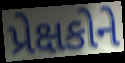
પ્રેક્ષકોને